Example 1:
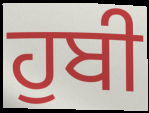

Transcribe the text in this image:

ਹੁਬੀ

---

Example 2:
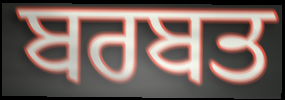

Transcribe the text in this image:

ਬਰਬਤ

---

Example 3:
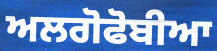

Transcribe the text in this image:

ਅਲਗੋਫੋਬੀਆ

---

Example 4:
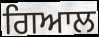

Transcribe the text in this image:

ਗਿਆਲ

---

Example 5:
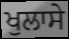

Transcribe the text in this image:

ਖੁਲਾਸੇ